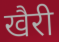
खैरी